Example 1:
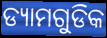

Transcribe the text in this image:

ଡ୍ୟାମଗୁଡିକ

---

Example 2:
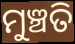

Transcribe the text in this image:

ମୁଞ୍ଚତି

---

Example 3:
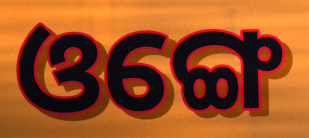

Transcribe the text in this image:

ଓଙ୍ଗେ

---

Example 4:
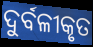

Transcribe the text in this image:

ଦୁର୍ବଳୀକୃତ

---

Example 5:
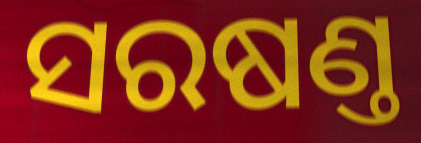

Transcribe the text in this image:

ସରଷଣ୍ତ